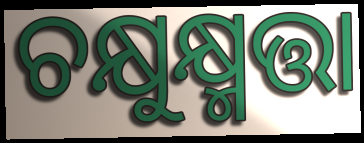
ଚକ୍ଷୁକ୍ଷ୍ମତ୍ତା